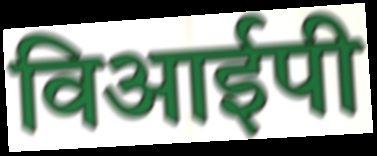
विआईपी